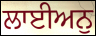
ਲਾਈਅਨੁ